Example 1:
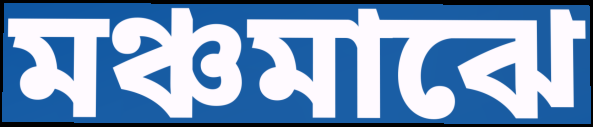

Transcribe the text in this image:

মঞ্চমাঝে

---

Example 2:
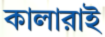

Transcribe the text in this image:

কালারাই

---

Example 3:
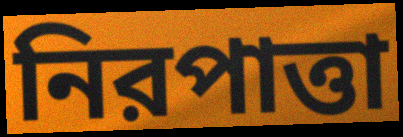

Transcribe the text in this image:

নিরপাত্তা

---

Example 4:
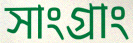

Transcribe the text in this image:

সাংগ্রাং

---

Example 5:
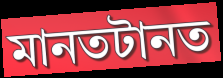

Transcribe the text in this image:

মানতটানত